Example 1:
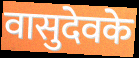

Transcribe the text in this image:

वासुदेवके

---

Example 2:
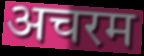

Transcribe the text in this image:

अचरम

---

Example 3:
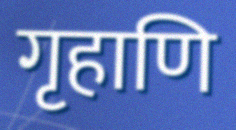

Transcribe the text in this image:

गृहाणि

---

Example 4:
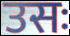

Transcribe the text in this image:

उसः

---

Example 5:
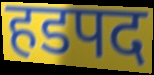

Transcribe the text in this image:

हडपद